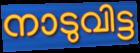
നാടുവിട്ട